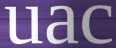
uac